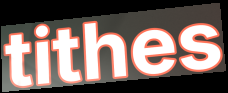
tithes